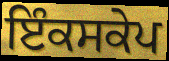
ਇੰਕਸਕੇਪ